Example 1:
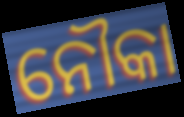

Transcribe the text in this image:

ନୌକା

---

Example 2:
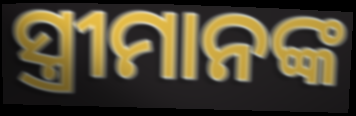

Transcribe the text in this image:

ସ୍ତ୍ରୀମାନଙ୍କ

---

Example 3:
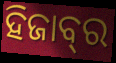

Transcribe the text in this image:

ହିଜାବ୍‌ର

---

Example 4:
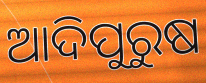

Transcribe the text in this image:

ଆଦିପୁରୁଷ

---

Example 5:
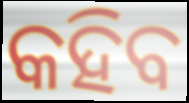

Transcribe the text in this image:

କହିବ